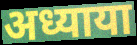
अध्याया